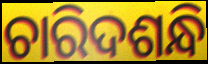
ଚାରିଦଶନ୍ଧି